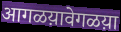
आगळय़ावेगळय़ा